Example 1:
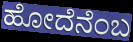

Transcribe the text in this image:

ಹೋದೆನೆಂಬ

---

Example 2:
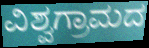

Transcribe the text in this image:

ವಿಶ್ವಗ್ರಾಮದ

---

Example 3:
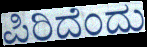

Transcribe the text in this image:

ಪಿರಿದೆಂದು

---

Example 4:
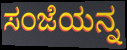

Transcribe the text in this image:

ಸಂಜೆಯನ್ನ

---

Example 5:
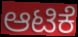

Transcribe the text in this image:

ಆಟಿಕೆ